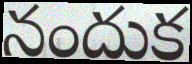
నందుక